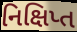
નિક્ષિપ્ત